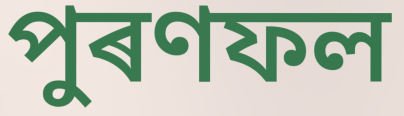
পুৰণফল